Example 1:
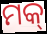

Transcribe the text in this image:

ମକ୍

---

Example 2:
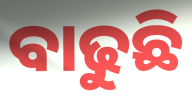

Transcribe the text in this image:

ବାଢୁଛି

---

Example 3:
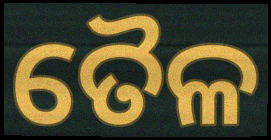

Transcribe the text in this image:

ତୈଳ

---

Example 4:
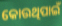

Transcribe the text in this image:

କୋଉଥିପାଇଁ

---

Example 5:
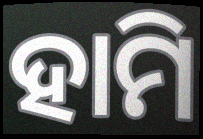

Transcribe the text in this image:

ହାମି